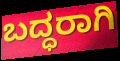
ಬದ್ಧರಾಗಿ